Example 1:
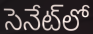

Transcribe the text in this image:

సెనేట్‌లో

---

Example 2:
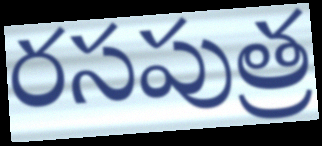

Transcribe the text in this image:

రసపుత్ర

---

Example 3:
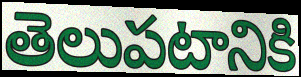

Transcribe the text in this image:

తెలుపటానికి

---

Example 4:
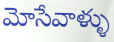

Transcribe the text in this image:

మోసేవాళ్ళు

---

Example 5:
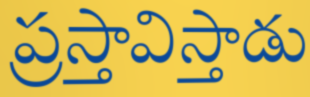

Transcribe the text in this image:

ప్రస్తావిస్తాడు